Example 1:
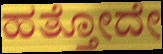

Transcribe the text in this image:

ಹತ್ತೋದೇ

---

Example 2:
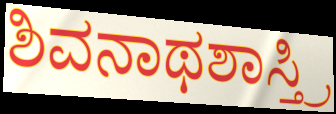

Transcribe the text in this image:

ಶಿವನಾಥಶಾಸ್ತ್ರಿ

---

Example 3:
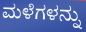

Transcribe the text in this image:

ಮಳೆಗಳನ್ನು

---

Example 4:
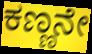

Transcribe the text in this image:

ಕಣ್ಣನೇ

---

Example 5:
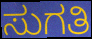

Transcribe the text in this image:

ಸುಗತಿ